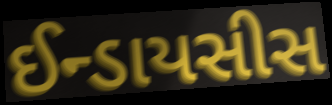
ઈન્ડાયસીસ